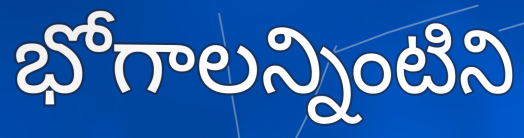
భోగాలన్నింటిని